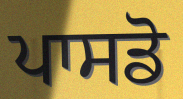
ਪਾਸਡੋ